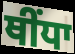
ਥੀਂਧਾ